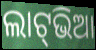
ଲାଟ୍‍ଭିଆ